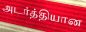
அடர்த்தியான